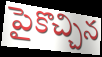
పైకొచ్చిన